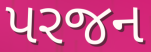
પરજન